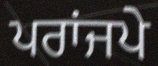
ਪਰਾਂਜਪੇ